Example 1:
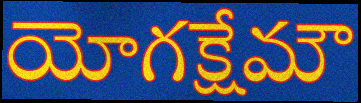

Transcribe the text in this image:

యోగక్షేమౌ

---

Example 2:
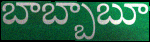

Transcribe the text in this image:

బాబ్బాబూ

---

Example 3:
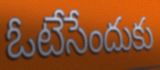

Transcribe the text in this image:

ఓటేసేందుకు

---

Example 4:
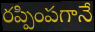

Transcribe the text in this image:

రప్పింపగానే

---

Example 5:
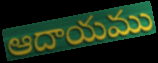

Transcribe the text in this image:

ఆదాయము